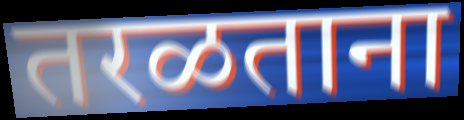
तरळताना